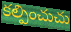
కల్పించుచు